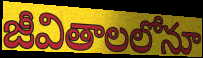
జీవితాలలోనూ